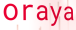
oraya